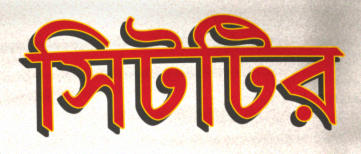
সিটটির